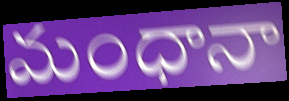
మంధానా